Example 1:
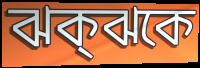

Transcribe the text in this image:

ঝক্‌ঝকে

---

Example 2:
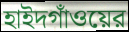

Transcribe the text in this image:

হাইদগাঁওয়ের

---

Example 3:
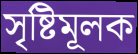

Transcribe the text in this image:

সৃষ্টিমূলক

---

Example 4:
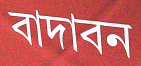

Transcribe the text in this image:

বাদাবন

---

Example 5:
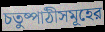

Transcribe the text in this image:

চতুষ্পাঠীসমূহের